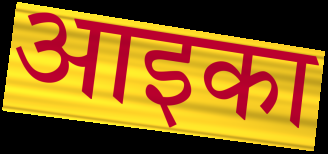
आइका